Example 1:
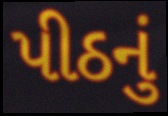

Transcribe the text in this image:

પીઠનું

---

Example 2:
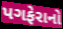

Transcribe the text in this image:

પગફેરાનો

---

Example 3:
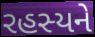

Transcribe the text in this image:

રહસ્યને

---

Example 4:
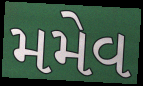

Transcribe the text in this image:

મમેવ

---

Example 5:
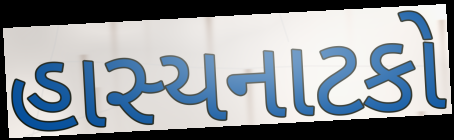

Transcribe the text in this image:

હાસ્યનાટકો